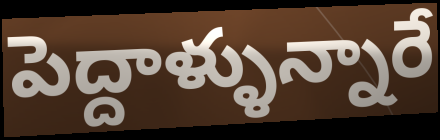
పెద్దాళ్ళున్నారే